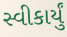
સ્વીકાર્યું